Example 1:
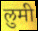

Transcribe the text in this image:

लुमी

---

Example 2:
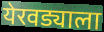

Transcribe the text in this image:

येरवड्याला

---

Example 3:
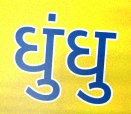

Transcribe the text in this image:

धुंधु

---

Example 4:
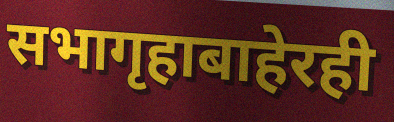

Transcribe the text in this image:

सभागृहाबाहेरही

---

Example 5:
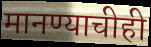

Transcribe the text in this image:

मानण्याचीही